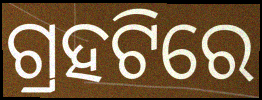
ଗ୍ରହଟିରେ